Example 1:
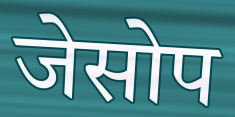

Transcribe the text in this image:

जेसोप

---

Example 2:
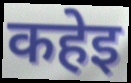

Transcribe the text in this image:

कहेइ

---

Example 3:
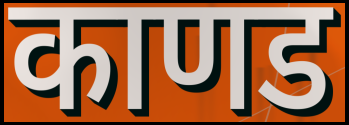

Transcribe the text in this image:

काणड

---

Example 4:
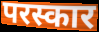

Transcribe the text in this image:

परस्कार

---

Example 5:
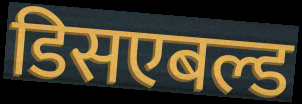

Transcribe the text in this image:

डिसएबल्ड